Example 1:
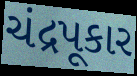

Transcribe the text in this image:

ચંદ્રપૂકાર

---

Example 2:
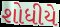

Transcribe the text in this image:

શોધીયે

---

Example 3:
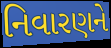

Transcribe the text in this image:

નિવારણને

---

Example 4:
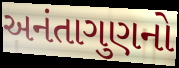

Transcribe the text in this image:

અનંતાગુણનો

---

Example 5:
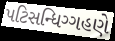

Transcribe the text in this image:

પટિસન્ધિગ્ગહણે